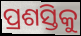
ପ୍ରଶସ୍ତିକୁ